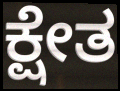
ಕ್ಷೇತ